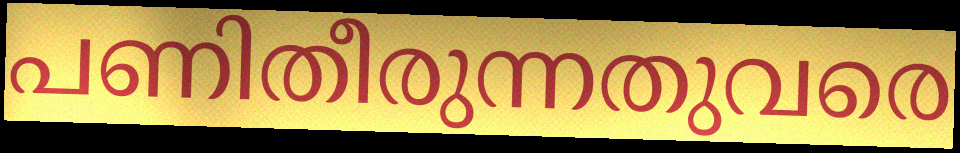
പണിതീരുന്നതുവരെ